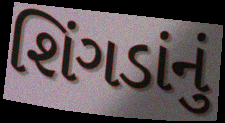
શિંગડાંનું